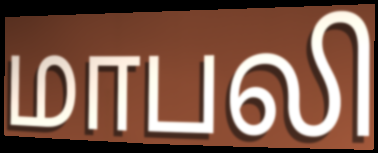
மாபலி